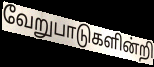
வேறுபாடுகளின்றி